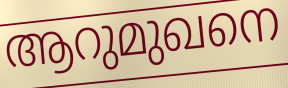
ആറുമുഖനെ